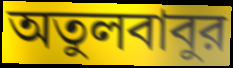
অতুলবাবুর